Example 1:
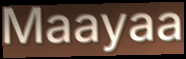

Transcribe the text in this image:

Maayaa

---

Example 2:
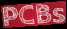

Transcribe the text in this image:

PCBs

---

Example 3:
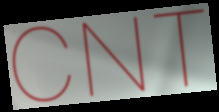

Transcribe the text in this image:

CNT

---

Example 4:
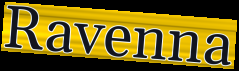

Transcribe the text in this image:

Ravenna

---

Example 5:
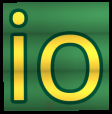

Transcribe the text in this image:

io